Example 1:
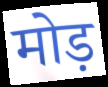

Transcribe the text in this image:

मोड़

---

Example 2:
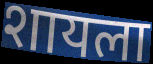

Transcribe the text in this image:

शायला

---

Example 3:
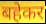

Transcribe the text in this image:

बहेकर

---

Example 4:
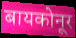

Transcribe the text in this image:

बायकोनूर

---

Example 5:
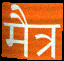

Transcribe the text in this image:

मैत्र